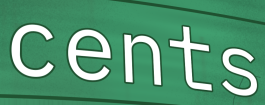
cents